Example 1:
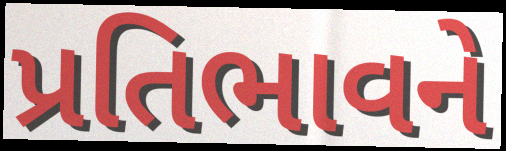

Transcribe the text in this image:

પ્રતિભાવને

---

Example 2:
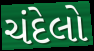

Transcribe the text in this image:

ચંદેલો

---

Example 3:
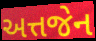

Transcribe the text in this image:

અત્તજેન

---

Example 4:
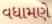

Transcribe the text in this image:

વધામણે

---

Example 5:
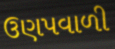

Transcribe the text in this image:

ઉણપવાળી